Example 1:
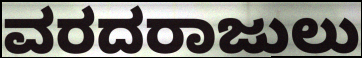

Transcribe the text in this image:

ವರದರಾಜುಲು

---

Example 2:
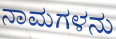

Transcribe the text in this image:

ನಾಮಗಳನು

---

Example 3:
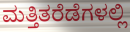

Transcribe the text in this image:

ಮತ್ತಿತರೆಡೆಗಳಲ್ಲಿ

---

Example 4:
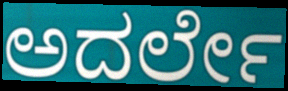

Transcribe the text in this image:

ಅದರ್ಲೇ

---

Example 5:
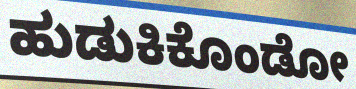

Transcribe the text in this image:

ಹುಡುಕಿಕೊಂಡೋ